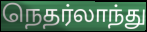
நெதர்லாந்து